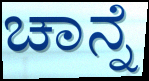
ಚಾನ್ನೆ